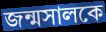
জন্মসালকে